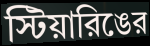
স্টিয়ারিঙের